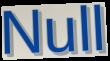
Null